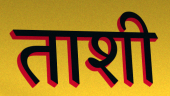
ताशी